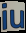
iu